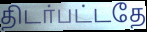
திடர்பட்டதே